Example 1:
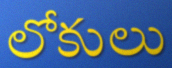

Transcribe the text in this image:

లోకులు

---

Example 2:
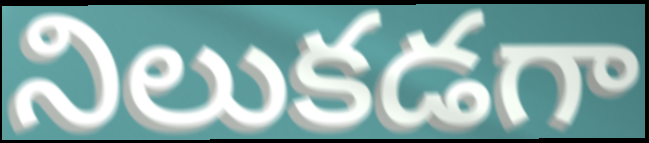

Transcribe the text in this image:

నిలుకడగా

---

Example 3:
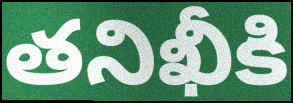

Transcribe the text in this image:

తనిఖీకి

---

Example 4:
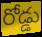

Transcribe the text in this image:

రోడ్డు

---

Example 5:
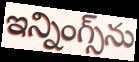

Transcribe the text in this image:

ఇన్నింగ్స్‌ను